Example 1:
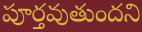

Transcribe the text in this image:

పూర్తవుతుందని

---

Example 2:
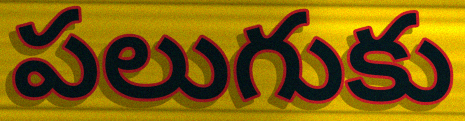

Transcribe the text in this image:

పలుగుకు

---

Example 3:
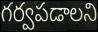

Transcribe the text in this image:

గర్వపడాలని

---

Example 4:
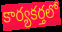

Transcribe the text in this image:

కార్యకర్తలో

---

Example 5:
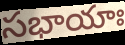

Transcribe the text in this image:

సభాయాః